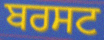
ਬਰਸਟ